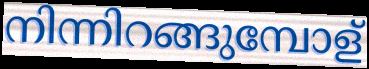
നിന്നിറങ്ങുമ്പോള്